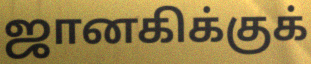
ஜானகிக்குக்